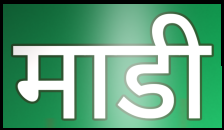
माडी